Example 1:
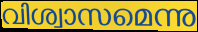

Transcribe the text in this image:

വിശ്വാസമെന്നു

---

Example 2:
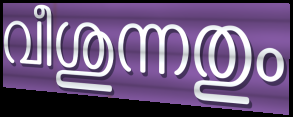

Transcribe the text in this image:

വീശുന്നതും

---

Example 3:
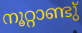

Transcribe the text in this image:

നൂറ്റാണ്ടു്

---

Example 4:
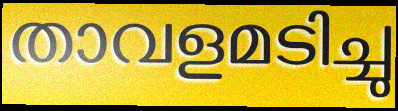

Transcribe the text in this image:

താവളമടിച്ചു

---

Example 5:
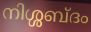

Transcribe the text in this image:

നിശ്ശബ്ദം